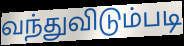
வந்துவிடும்படி